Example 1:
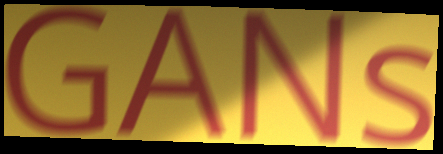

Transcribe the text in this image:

GANs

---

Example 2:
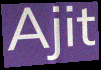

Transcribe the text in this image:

Ajit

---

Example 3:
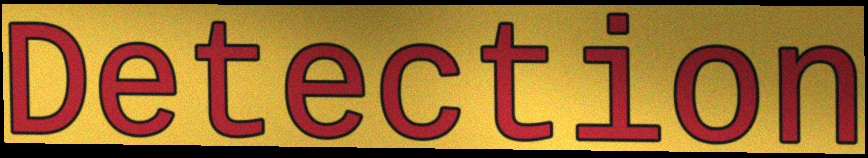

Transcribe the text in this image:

Detection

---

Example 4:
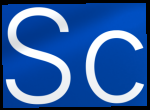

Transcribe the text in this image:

Sc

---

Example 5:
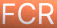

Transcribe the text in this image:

FCR